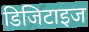
डिजिटाइज